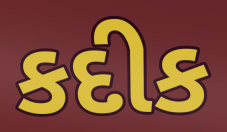
કદીક